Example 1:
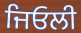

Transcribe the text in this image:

ਜਿਓਲੀ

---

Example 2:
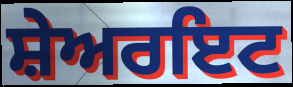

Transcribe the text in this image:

ਸ਼ੇਅਰਇਟ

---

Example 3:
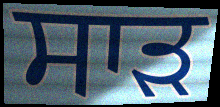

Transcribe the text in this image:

ਸਾਡ਼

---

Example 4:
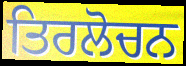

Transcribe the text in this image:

ਤਿਰਲੋਚਨ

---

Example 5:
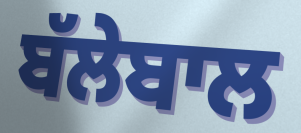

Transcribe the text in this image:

ਬੱਲੇਬਾਲ